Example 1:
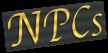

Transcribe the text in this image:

NPCs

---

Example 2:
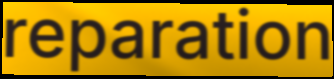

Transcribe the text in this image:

reparation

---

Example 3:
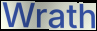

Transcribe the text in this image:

Wrath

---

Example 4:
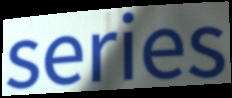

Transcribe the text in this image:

series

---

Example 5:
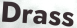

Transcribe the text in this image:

Drass